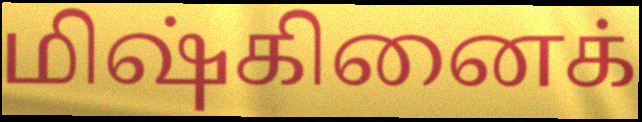
மிஷ்கினைக்